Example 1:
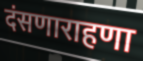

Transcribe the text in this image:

दंसणाराहणा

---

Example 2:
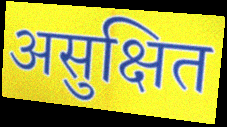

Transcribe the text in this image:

असुक्षित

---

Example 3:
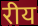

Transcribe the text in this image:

रीय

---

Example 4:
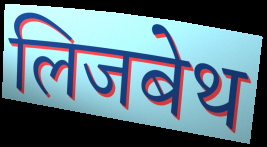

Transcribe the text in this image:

लिजबेथ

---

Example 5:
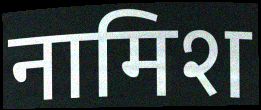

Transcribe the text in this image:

नामिश